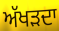
ਅੱਖੜਦਾ